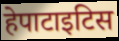
हेपाटाइटिस